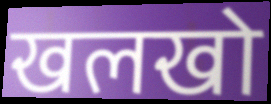
खलखो